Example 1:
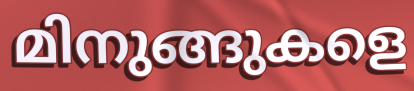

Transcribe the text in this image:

മിനുങ്ങുകളെ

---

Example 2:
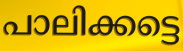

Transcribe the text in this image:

പാലിക്കട്ടെ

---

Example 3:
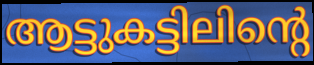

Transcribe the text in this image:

ആട്ടുകട്ടിലിന്റെ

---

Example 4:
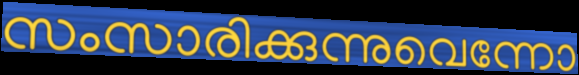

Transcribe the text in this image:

സംസാരിക്കുന്നുവെന്നോ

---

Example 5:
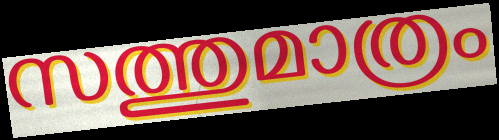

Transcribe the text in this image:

സത്തുമാത്രം